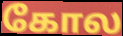
கோல